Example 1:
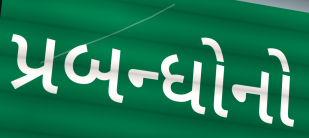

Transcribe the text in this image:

પ્રબન્ધોનો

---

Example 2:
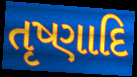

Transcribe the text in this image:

તૃષ્ણાદિ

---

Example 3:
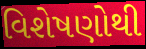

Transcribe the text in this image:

વિશેષણોથી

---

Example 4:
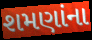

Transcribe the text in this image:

શમણાંના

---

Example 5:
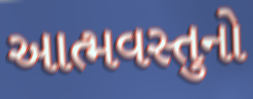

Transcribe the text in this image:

આત્મવસ્તુનો